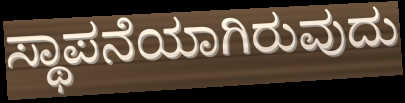
ಸ್ಥಾಪನೆಯಾಗಿರುವುದು